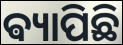
ଵ୍ୟାପିଛି